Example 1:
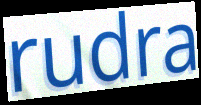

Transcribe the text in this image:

rudra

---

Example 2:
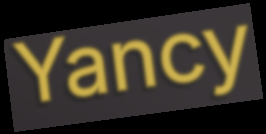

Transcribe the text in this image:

Yancy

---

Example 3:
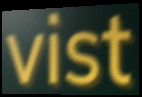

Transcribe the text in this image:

vist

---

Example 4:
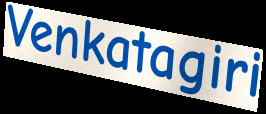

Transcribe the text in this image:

Venkatagiri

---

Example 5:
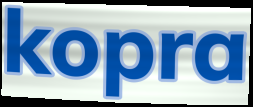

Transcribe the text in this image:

kopra